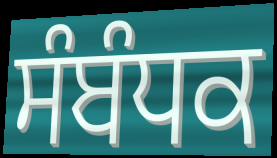
ਸੰਬੰਧਕ